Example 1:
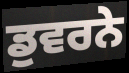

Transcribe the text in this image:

ਡੁਵਰਨੇ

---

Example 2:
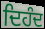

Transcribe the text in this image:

ਦਿਹੰਦ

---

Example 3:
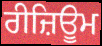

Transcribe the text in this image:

ਰੀਜ਼ਿਊਮ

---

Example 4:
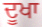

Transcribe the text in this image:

ਦੂਖਾ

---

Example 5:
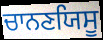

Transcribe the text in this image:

ਚਾਨਣਯਿਸੂ